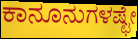
ಕಾನೂನುಗಳಷ್ಟೇ